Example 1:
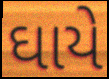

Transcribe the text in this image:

ઘાયે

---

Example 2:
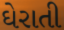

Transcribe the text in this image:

ઘેરાતી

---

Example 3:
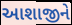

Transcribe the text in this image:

આશાજીને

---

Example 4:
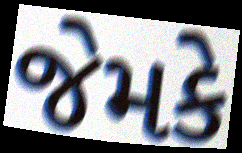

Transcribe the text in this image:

જેમકે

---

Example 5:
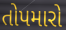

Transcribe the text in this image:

તોપમારો